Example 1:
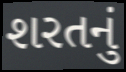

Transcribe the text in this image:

શરતનું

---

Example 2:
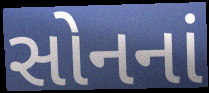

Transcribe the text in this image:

સોનનાં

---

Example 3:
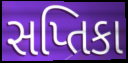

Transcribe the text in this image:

સપ્તિકા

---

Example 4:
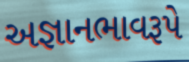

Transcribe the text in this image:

અજ્ઞાનભાવરૂપે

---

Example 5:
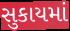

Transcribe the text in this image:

સુકાયમાં